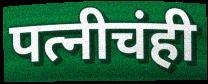
पत्नीचंही